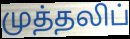
முத்தலிப்